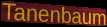
Tanenbaum